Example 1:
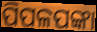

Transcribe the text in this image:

ପିପଳପଙ୍କା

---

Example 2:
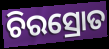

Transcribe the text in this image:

ଚିରସ୍ରୋତ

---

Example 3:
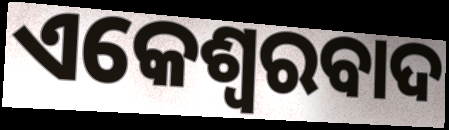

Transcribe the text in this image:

ଏକେଶ୍ୱରବାଦ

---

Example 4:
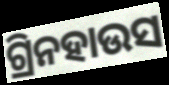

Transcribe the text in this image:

ଗ୍ରିନହାଉସ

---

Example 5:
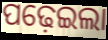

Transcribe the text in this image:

ପଢ଼େଇଲା